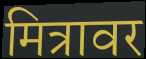
मित्रावर